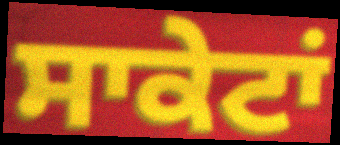
ਸਾਕੇਟਾਂ